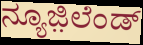
ನ್ಯೂಜ಼ಿಲೆಂಡ್